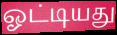
ஓட்டியது